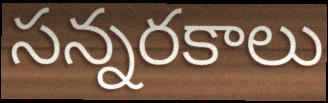
సన్నరకాలు